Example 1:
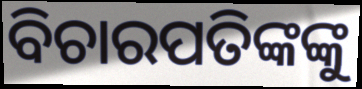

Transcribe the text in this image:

ବିଚାରପତିଙ୍କଙ୍କୁ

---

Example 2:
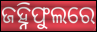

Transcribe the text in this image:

ଜହ୍ନିଫୁଲରେ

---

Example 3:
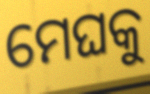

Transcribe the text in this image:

ମେଘକୁ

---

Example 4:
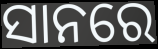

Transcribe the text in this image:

ସାନରେ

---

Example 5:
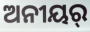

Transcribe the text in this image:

ଅନୀୟର୍